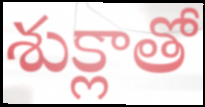
శుక్లాతో